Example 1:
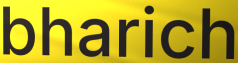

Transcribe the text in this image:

bharich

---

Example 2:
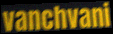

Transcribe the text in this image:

vanchvani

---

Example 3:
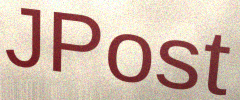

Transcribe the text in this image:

JPost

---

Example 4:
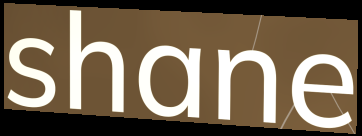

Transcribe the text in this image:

shane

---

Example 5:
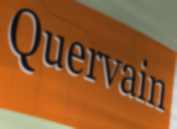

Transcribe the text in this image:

Quervain